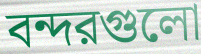
বন্দরগুলো